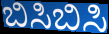
ಬಿಸಿಬಿಸಿ